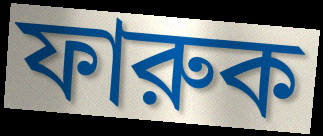
ফারুক